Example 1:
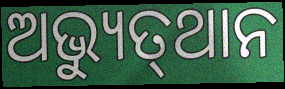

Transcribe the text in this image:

ଅଭ୍ୟୁତ୍‌ଥାନ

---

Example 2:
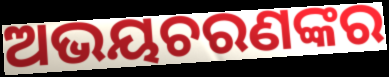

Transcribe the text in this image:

ଅଭୟଚରଣଙ୍କର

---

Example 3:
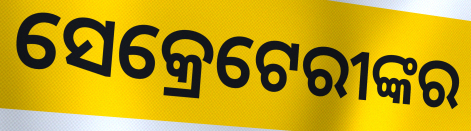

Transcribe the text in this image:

ସେକ୍ରେଟେରୀଙ୍କର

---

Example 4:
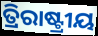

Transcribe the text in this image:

ତ୍ରିରାଷ୍ଟ୍ରୀୟ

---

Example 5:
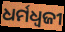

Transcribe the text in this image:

ଧର୍ମଧ୍ୱଜୀ